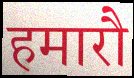
हमारौ